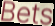
Bets